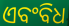
ଏବଂବିଧ